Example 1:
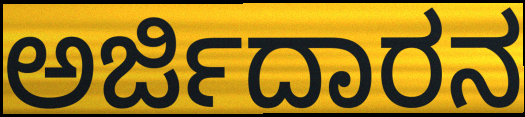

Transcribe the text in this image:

ಅರ್ಜಿದಾರನ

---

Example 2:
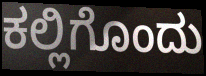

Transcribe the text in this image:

ಕಲ್ಲಿಗೊಂದು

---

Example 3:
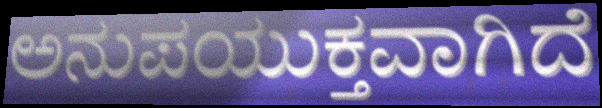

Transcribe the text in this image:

ಅನುಪಯುಕ್ತವಾಗಿದೆ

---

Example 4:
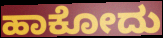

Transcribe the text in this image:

ಹಾಕೋದು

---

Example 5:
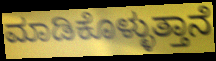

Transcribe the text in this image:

ಮಾಡಿಕೊಳ್ಳುತ್ತಾನೆ